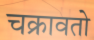
चक्रावतो